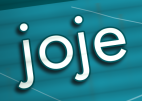
joje